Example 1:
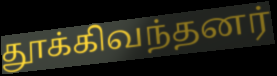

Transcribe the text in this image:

தூக்கிவந்தனர்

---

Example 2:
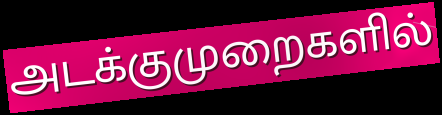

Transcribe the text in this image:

அடக்குமுறைகளில்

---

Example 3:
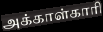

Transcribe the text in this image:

அக்காள்காரி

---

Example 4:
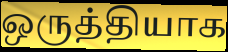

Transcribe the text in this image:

ஒருத்தியாக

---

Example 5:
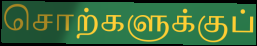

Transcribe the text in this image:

சொற்களுக்குப்